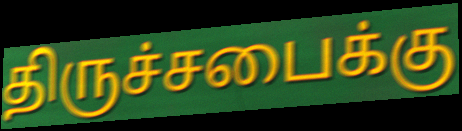
திருச்சபைக்கு